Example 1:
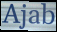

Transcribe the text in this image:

Ajab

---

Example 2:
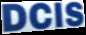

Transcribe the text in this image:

DCIS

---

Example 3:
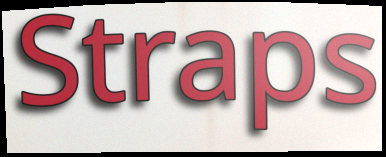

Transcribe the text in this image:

Straps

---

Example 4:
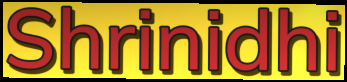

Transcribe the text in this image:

Shrinidhi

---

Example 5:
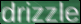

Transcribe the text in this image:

drizzle